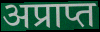
अप्राप्त